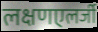
लक्षणएलर्जी